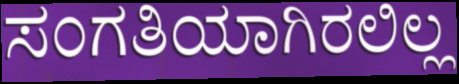
ಸಂಗತಿಯಾಗಿರಲಿಲ್ಲ